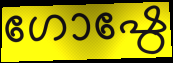
ഗോഷ്ഠേ